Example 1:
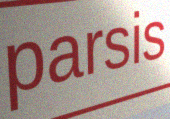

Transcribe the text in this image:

parsis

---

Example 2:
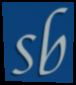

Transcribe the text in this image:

sb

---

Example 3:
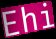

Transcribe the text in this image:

Ehi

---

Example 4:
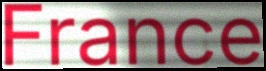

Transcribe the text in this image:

France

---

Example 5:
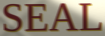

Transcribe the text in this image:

SEAL